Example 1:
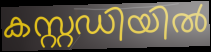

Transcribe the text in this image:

കസ്റ്റഡിയിൽ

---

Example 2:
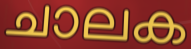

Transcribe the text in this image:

ചാലക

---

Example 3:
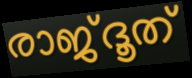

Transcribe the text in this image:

രാജ്ദൂത്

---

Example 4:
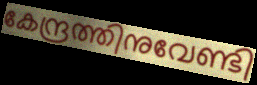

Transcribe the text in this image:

കേന്ദ്രത്തിനുവേണ്ടി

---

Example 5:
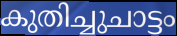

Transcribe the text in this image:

കുതിച്ചുചാട്ടം